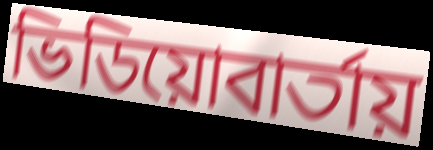
ভিডিয়োবার্তায়